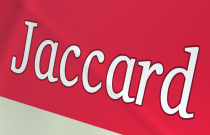
Jaccard